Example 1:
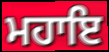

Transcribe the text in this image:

ਮਹਾਇ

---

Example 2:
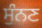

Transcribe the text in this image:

ਸੁੰਨਣ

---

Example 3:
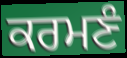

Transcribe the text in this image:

ਕਰਮਣੰ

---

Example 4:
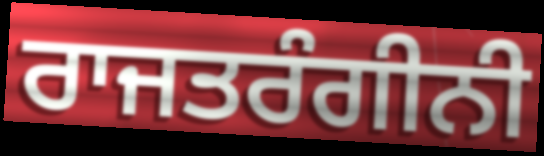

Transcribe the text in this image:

ਰਾਜਤਰੰਗੀਨੀ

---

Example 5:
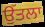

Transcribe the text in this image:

ਉੱਤਲਾ